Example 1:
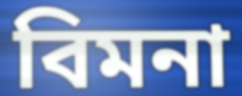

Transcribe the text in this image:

বিমনা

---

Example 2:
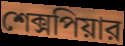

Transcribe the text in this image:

শেক্সপিয়ার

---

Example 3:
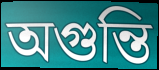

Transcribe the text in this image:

অগুন্তি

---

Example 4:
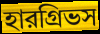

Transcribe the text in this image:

হারগ্রিভস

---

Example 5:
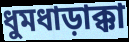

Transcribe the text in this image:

ধুমধাড়াক্কা